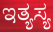
ಇತ್ಯಸ್ಯ